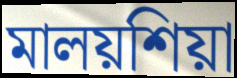
মালয়শিয়া